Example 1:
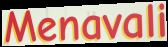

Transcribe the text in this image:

Menavali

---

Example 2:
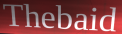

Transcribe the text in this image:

Thebaid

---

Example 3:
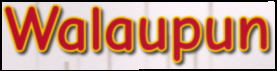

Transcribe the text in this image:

Walaupun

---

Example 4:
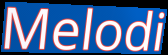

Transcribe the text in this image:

Melodi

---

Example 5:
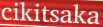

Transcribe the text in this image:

cikitsaka